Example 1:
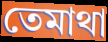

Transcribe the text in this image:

তেমাথা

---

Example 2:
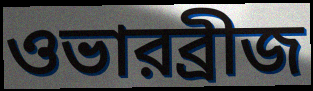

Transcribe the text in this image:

ওভারব্রীজ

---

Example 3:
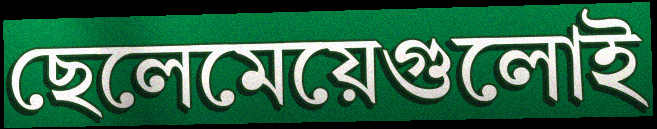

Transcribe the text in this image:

ছেলেমেয়েগুলোই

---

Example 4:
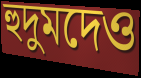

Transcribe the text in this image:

হুদুমদেও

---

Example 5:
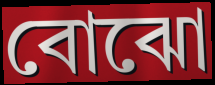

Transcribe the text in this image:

বোঝো